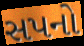
સપનો